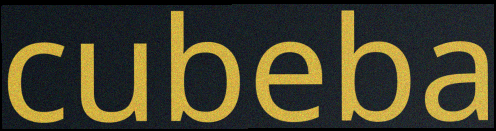
cubeba